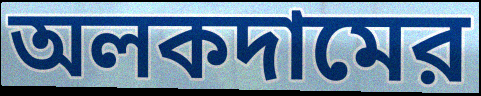
অলকদামের